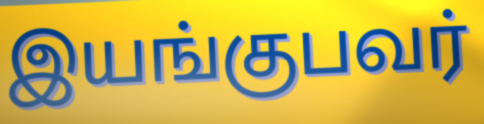
இயங்குபவர்